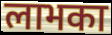
लाभका